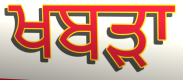
ਖਬੜਾ